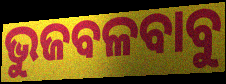
ଭୁଜବଳବାବୁ